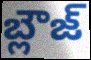
బ్లౌజ్